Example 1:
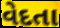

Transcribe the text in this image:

વેદતા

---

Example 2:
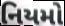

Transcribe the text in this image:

નિયમો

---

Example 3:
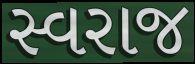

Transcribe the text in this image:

સ્વરાજ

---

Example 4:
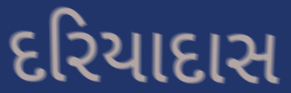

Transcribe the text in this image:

દરિયાદાસ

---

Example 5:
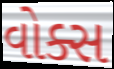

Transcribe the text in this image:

વોક્સ